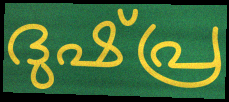
ദുഷ്‌പ്ര